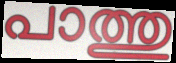
പാത്തു